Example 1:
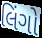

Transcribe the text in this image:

લિંગો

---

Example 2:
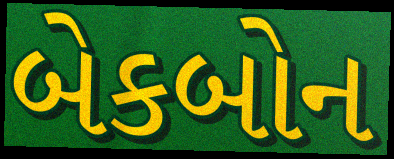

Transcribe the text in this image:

બેકબોન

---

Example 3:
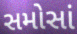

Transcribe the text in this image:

સમોસાં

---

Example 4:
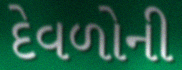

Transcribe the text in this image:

દેવળોની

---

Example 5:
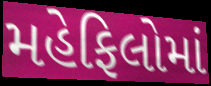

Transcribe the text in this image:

મહેફિલોમાં